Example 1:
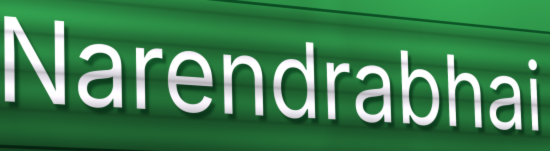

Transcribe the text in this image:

Narendrabhai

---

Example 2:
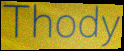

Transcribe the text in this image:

Thody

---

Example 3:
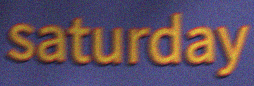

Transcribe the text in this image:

saturday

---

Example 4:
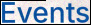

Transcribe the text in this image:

Events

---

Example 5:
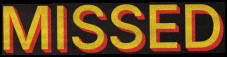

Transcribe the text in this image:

MISSED